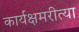
कार्यक्षमरीत्या